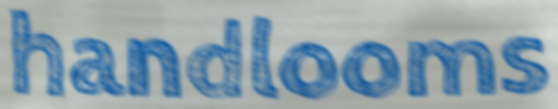
handlooms